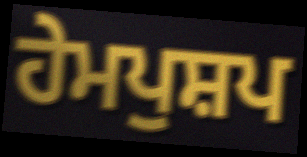
ਹੇਮਪੁਸ਼ਪ